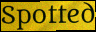
Spotted